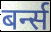
बर्न्स